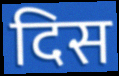
दिस